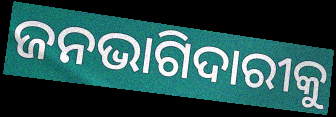
ଜନଭାଗିଦାରୀକୁ